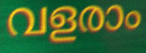
വളരാം